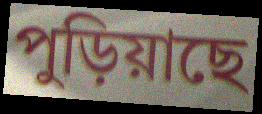
পুড়িয়াছে